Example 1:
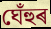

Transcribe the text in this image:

ঘেঁহুৰ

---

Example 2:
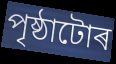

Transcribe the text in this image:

পৃষ্ঠাটোৰ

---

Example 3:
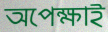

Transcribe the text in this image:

অপেক্ষাই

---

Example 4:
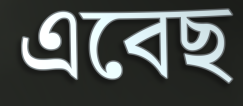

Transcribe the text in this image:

এবেছ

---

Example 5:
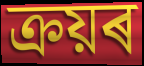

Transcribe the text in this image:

ক্ৰয়ৰ